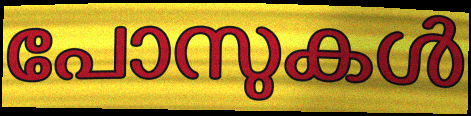
പോസുകൾ